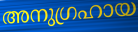
അനുഗ്രഹായ